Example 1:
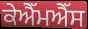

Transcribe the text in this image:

ਕੇਐੱਮਐੱਸ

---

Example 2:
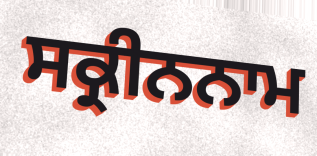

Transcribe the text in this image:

ਸਕ੍ਰੀਨਨਾਮ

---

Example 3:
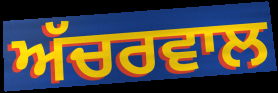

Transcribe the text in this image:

ਅੱਚਰਵਾਲ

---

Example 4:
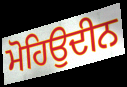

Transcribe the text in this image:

ਮੋਹਿਉਦੀਨ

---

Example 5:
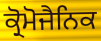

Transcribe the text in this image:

ਕ੍ਰੋਮੋਜੈਨਿਕ